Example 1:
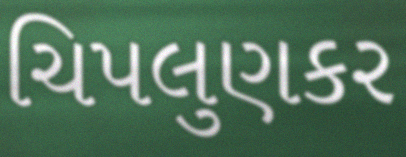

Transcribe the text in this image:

ચિપલુણકર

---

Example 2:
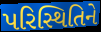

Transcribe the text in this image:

પરિસ્થિતિને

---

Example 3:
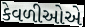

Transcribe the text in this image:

કેવળીઓએ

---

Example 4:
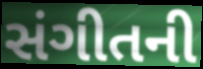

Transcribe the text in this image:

સંગીતની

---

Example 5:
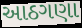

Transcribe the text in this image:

આઠગણા